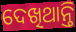
ଦେଖିଥାନ୍ତି